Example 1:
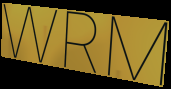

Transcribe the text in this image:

WRM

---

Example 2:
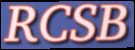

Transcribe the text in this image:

RCSB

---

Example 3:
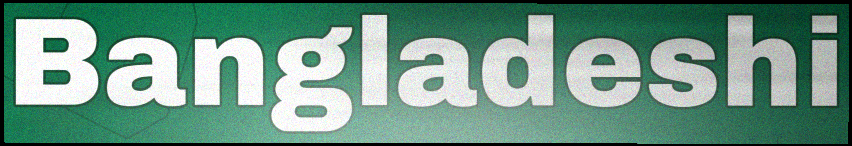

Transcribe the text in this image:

Bangladeshi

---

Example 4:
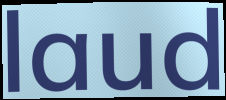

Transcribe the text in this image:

laud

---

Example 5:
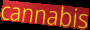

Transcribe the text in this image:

cannabis